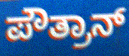
ಪೌತ್ರಾನ್